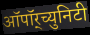
ऑपॉर्च्युनिटी